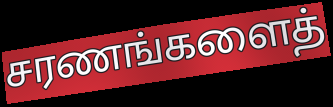
சரணங்களைத்